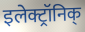
इलेक्ट्रॉनिक्